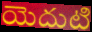
యెదుటి